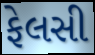
ફેલસી